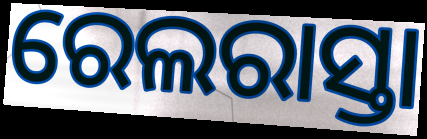
ରେଲରାସ୍ତା